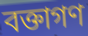
বক্তাগণ